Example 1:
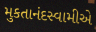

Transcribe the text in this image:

મુકતાનંદસ્વામીએ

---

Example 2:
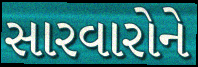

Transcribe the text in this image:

સારવારોને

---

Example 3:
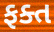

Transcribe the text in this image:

ફક્ત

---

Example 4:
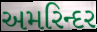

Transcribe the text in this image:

અમરિન્દર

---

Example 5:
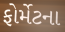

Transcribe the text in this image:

ફોર્મેટના